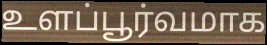
உளப்பூர்வமாக